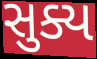
સુક્ય